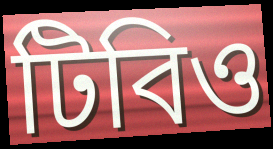
টিবিও